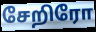
சேறிரோ